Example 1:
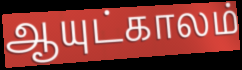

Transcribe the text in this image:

ஆயுட்காலம்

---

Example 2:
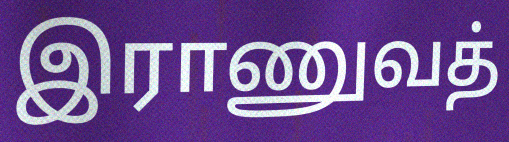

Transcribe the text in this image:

இராணுவத்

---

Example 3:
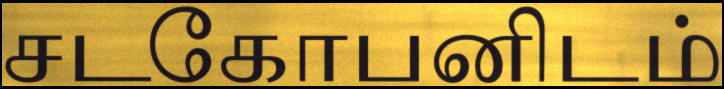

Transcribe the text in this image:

சடகோபனிடம்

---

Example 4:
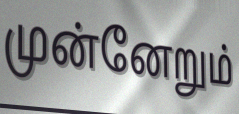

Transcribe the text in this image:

முன்னேறும்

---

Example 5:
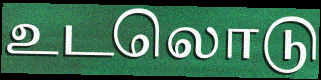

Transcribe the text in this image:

உடலொடு